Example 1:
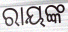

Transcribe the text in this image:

ରାୟଙ୍କ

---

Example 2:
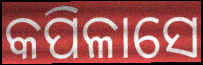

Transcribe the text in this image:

କପିଳାସେ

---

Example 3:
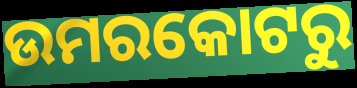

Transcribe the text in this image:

ଉମରକୋଟରୁ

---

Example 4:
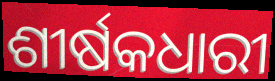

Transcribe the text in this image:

ଶୀର୍ଷକଧାରୀ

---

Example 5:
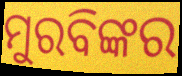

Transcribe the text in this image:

ମୁରବିଙ୍କର